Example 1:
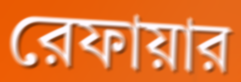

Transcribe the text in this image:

রেফায়ার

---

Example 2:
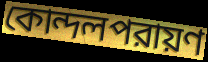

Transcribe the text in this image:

কোন্দলপরায়ণ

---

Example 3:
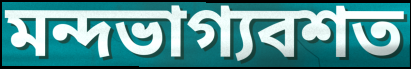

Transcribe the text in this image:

মন্দভাগ্যবশত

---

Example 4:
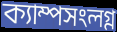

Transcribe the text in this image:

ক্যাম্পসংলগ্ন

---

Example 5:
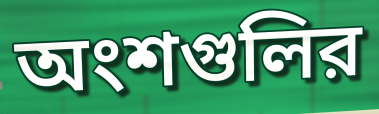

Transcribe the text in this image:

অংশগুলির